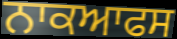
ਨਾਕਆਫਸ